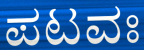
ಪಟವಃ